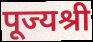
पूज्यश्री